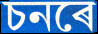
চনৰে